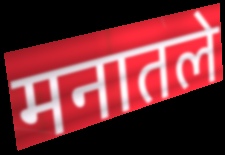
मनातले